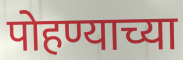
पोहण्याच्या